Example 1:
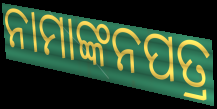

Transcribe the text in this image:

ନାମାଙ୍କନପତ୍ର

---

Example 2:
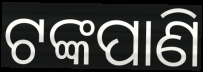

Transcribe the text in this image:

ଟଙ୍କପାଣି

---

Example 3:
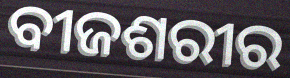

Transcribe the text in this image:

ବୀଜଶରୀର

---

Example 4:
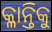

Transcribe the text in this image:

କ୍ଳାନ୍ତିକୁ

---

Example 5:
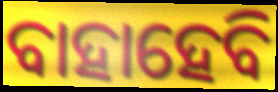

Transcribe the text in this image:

ବାହାହେବି